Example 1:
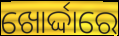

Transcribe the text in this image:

ଖୋର୍ଦ୍ଦାରେ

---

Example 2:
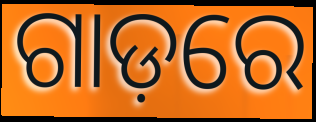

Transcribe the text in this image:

ଗାଡ଼ରେ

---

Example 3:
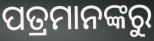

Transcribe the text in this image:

ପତ୍ରମାନଙ୍କରୁ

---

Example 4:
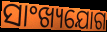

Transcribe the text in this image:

ସାଂଖ୍ଯଯୋଗ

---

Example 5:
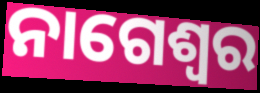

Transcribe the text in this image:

ନାଗେଶ୍ଵର